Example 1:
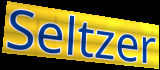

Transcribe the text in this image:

Seltzer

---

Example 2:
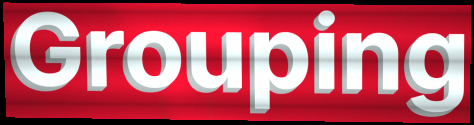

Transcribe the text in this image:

Grouping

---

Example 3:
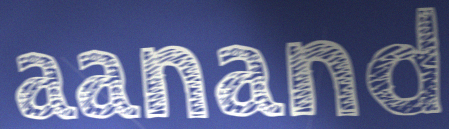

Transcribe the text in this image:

aanand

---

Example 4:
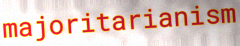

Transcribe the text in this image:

majoritarianism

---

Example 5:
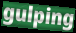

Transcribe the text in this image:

gulping